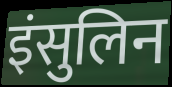
इंसुलिन